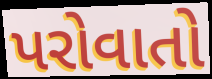
પરોવાતો